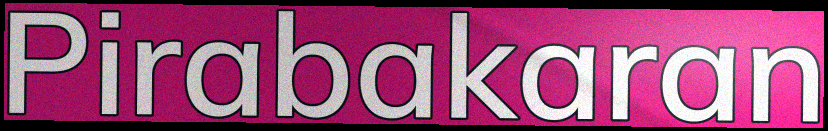
Pirabakaran